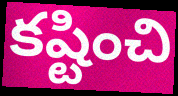
కష్టించి